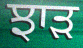
ਝਾੜ